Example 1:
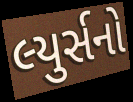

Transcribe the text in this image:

લ્યુર્સનો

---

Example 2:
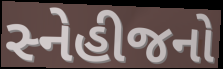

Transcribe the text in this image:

સ્નેહીજનો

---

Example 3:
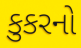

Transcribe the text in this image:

કુકરનો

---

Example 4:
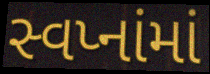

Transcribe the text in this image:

સ્વપ્નાંમાં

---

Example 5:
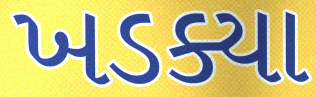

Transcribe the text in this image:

ખડક્યા